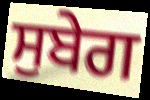
ਸੁਬੇਗ